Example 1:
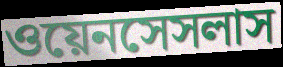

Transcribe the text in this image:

ওয়েনসেসলাস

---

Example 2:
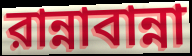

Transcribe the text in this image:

রান্নাবান্না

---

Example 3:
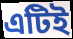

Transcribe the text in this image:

এটিই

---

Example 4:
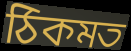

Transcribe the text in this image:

ঠিকমত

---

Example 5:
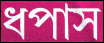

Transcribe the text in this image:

ধপাস